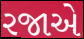
રજાએ